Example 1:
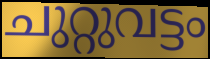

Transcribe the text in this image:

ചുറ്റുവട്ടം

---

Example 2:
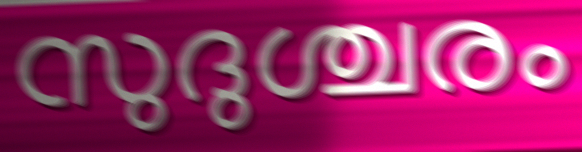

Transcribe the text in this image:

സുദുശ്ചരം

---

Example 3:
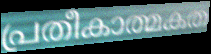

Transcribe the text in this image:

പ്രതീകാത്മകത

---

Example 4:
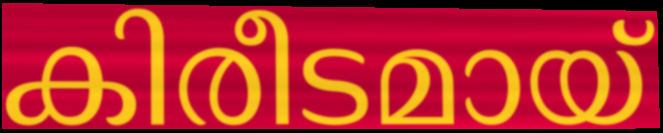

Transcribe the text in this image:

കിരീടമായ്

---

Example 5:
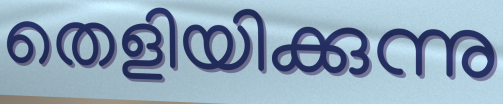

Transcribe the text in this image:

തെളിയിക്കുന്നു